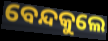
ବେନ୍ଦକୁଲେ